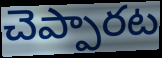
చెప్పారట